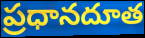
ప్రధానదూత